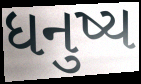
ધનુષ્ય